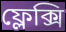
ফ্লেক্সি